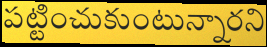
పట్టించుకుంటున్నారని